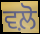
ਵਲ਼ੋ